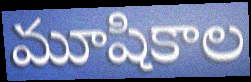
మూషికాల